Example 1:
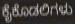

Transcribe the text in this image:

ಕೈಕೊಡಲಿಗಳು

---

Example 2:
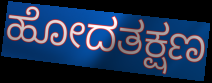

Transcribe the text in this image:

ಹೋದತಕ್ಷಣ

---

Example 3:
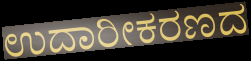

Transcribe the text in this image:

ಉದಾರೀಕರಣದ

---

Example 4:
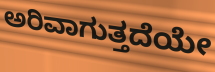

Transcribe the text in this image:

ಅರಿವಾಗುತ್ತದೆಯೇ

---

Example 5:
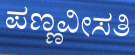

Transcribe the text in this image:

ಪಣ್ಣವೀಸತಿ